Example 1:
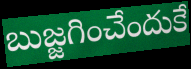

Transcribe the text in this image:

బుజ్జగించేందుకే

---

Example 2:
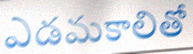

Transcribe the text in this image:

ఎడమకాలితో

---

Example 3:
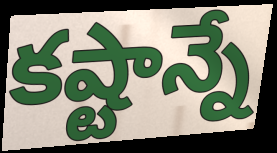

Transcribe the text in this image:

కష్టాన్నే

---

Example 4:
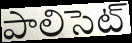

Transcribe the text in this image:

పాలిసెట్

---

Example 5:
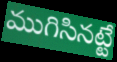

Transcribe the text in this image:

ముగిసినట్టే